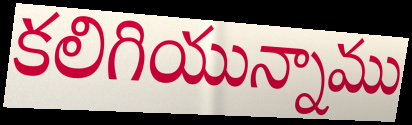
కలిగియున్నాము